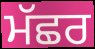
ਮੱਛਰ